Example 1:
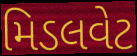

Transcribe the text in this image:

મિડલવેટ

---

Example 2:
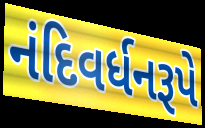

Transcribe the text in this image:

નંદિવર્ધનરૂપે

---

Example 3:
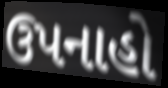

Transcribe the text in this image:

ઉપનાહો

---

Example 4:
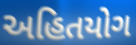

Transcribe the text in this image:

અહિતયોગ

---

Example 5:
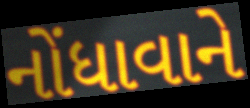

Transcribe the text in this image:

નોંધાવાને